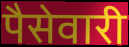
पैसेवारी